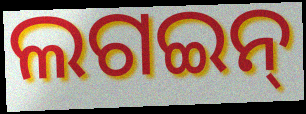
ଲଗଇନ୍